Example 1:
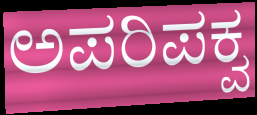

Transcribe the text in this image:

ಅಪರಿಪಕ್ವ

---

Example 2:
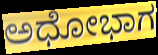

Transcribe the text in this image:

ಅಧೋಭಾಗ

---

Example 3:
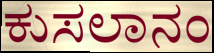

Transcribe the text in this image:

ಕುಸಲಾನಂ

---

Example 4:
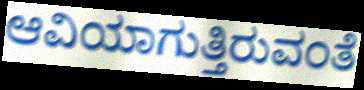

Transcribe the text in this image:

ಆವಿಯಾಗುತ್ತಿರುವಂತೆ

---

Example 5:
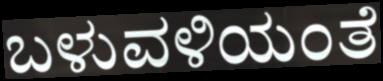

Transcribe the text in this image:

ಬಳುವಳಿಯಂತೆ